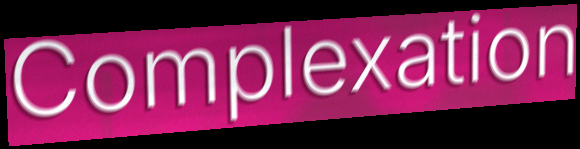
Complexation